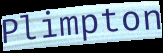
Plimpton